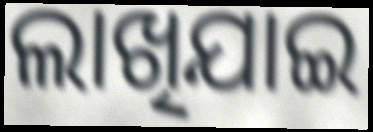
ଲାଖିଯାଇ